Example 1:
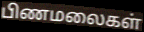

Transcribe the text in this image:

பிணமலைகள்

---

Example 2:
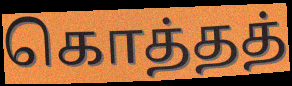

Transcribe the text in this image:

கொத்தத்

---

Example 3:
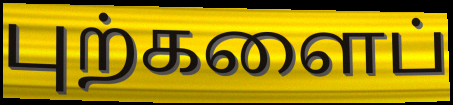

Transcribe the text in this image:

புற்களைப்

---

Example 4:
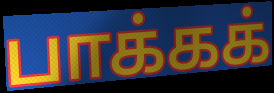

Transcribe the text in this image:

பாக்கக்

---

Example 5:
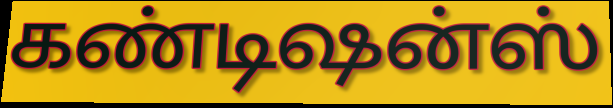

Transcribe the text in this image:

கண்டிஷன்ஸ்